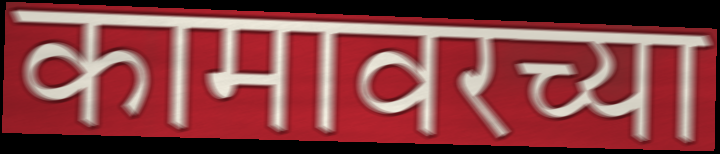
कामावरच्या